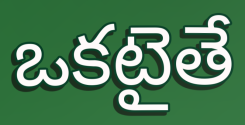
ఒకటైతే